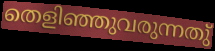
തെളിഞ്ഞുവരുന്നതു്